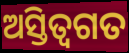
ଅସ୍ତିତ୍ବଗତ